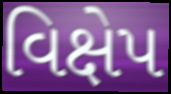
વિક્ષેપ